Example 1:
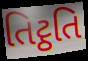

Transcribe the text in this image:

તિટ્ઠતિ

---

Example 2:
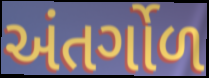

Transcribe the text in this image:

અંતર્ગોળ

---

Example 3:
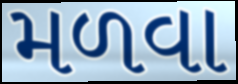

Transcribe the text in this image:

મળવા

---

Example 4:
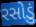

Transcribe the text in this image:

રસોડું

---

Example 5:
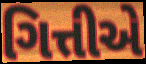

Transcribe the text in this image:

ગિત્તીએ